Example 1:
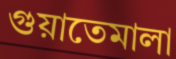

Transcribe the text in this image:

গুয়াতেমালা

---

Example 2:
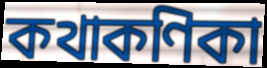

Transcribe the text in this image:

কথাকণিকা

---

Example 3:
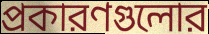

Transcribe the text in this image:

প্রকারণগুলোর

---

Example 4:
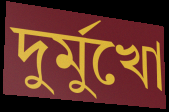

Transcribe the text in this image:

দুর্মুখো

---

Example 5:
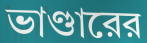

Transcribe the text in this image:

ভাণ্ডারের